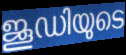
ജൂഡിയുടെ